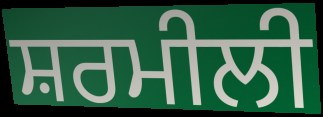
ਸ਼ਰਮੀਲੀ